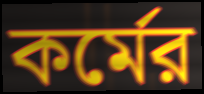
কর্মের